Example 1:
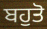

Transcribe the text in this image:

ਬਹੁਤੋ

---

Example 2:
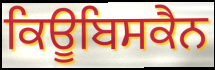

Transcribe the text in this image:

ਕਿਊਬਿਸਕੈਨ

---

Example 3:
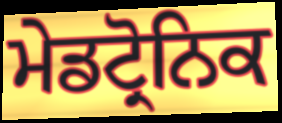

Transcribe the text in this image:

ਮੇਡਟ੍ਰੋਨਿਕ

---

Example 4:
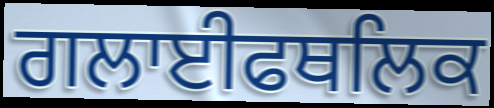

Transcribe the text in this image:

ਗਲਾਈਫਥਲਿਕ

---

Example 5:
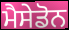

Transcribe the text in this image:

ਮੈਸੇਡੋਨ